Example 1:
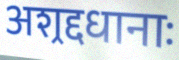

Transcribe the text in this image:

अश्रद्दधानाः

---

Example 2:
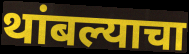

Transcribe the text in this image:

थांबल्याचा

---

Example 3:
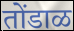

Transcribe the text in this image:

तोंडाळ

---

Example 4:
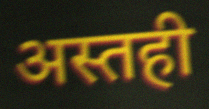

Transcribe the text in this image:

अस्तही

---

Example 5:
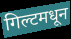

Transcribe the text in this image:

गिल्टमधून